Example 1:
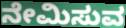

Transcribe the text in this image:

ನೇಮಿಸುವ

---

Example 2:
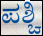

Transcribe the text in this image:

ಪಶ್ಚಿ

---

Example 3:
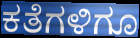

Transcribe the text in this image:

ಕತೆಗಳಿಗೂ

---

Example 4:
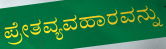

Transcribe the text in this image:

ಪ್ರೇತವ್ಯವಹಾರವನ್ನು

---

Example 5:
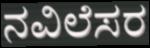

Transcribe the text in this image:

ನವಿಲೆಸರ